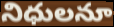
నిధులనూ